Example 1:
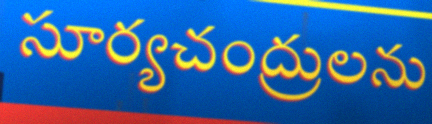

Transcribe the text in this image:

సూర్యచంద్రులను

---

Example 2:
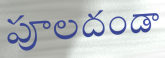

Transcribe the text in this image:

పూలదండా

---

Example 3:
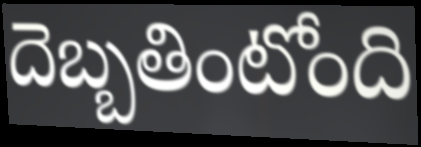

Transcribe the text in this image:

దెబ్బతింటోంది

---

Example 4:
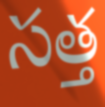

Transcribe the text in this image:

సత్త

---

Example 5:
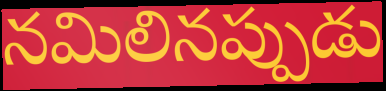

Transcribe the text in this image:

నమిలినప్పుడు